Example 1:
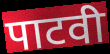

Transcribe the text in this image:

पाटवी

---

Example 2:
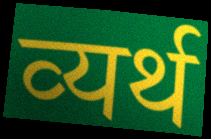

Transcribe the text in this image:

व्‍यर्थ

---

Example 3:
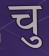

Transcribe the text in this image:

चु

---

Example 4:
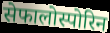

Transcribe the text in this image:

सेफालोस्पोरिन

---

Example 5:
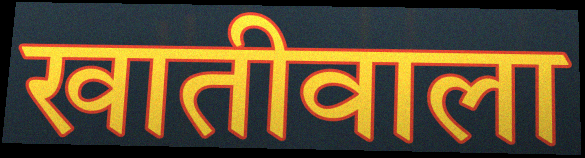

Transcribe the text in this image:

खातीवाला